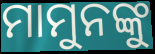
ମାମୁନଙ୍କୁ